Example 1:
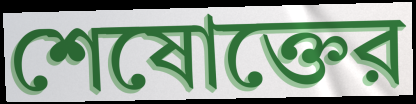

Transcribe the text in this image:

শেষোক্তের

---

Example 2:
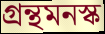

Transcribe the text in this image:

গ্রন্থমনস্ক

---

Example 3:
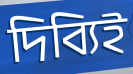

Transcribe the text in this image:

দিব্যিই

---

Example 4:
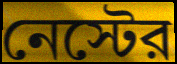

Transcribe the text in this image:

নেস্টের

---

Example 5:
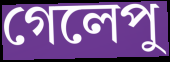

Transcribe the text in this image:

গেলেপু